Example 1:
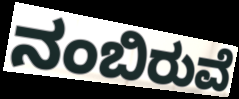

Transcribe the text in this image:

ನಂಬಿರುವೆ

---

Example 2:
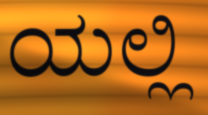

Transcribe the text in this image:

ಯಲ್ಲಿ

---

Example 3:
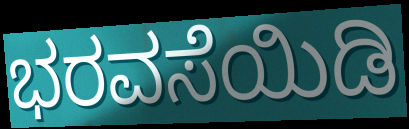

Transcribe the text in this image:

ಭರವಸೆಯಿಡಿ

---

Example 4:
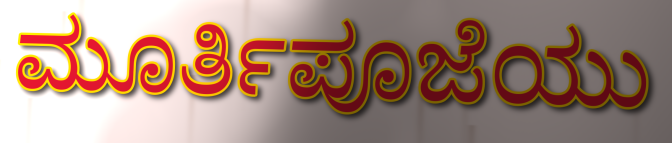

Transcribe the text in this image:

ಮೂರ್ತಿಪೂಜೆಯು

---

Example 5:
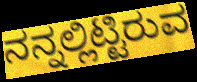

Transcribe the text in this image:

ನನ್ನಲ್ಲಿಟ್ಟಿರುವ